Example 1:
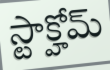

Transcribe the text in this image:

స్టాక్హోమ్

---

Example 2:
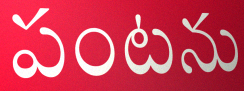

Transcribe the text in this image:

పంటను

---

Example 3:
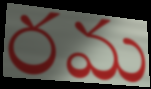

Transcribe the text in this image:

రమ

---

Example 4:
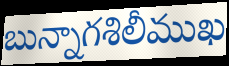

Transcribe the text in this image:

బున్నాగశిలీముఖ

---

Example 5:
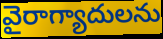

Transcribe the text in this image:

వైరాగ్యాదులను